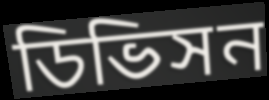
ডিভিসন